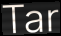
Tar